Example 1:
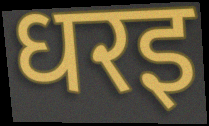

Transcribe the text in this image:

धरइ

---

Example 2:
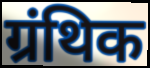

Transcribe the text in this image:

ग्रंथिक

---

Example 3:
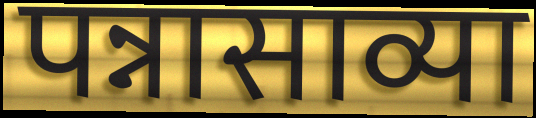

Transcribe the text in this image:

पन्नासाव्या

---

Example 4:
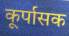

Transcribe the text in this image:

कूर्पासक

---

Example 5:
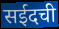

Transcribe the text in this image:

सईदची